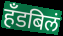
हँडबिलं